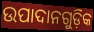
ଉପାଦାନଗୁଡ଼ିକ